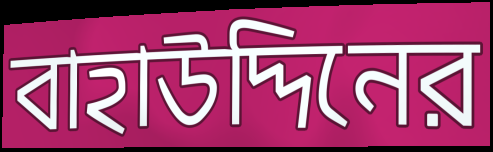
বাহাউদ্দিনের